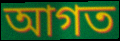
আগত